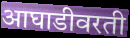
आघाडीवरती